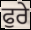
ਫੁਰੇ